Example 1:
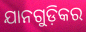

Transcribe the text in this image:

ଯାନଗୁଡ଼ିକର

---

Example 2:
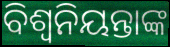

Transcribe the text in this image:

ବିଶ୍ବନିୟନ୍ତାଙ୍କ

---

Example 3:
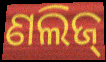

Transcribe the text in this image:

ଣଲିଜ୍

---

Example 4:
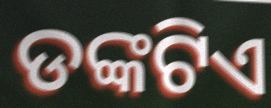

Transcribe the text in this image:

ଡଙ୍କଟିଏ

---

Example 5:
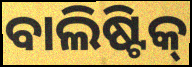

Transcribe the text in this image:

ବାଲିଷ୍ଟିକ୍